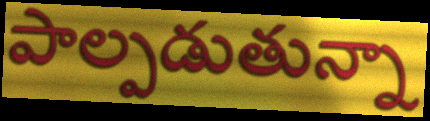
పాల్పడుతున్నా